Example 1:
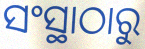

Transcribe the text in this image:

ସଂସ୍ଥାଠାରୁ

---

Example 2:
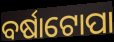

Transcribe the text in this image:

ବର୍ଷାଟୋପା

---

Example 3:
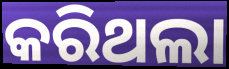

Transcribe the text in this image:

କରିଥଲା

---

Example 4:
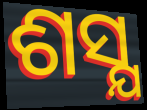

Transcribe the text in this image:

ଶସ୍ଯ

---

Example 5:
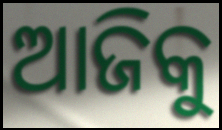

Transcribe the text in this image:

ଆଜିକୁ